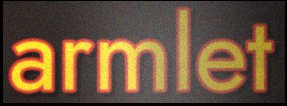
armlet